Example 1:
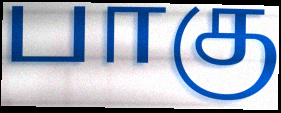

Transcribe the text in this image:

பாகு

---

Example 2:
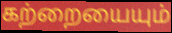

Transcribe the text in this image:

கற்றையையும்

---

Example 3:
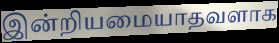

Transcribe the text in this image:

இன்றியமையாதவளாக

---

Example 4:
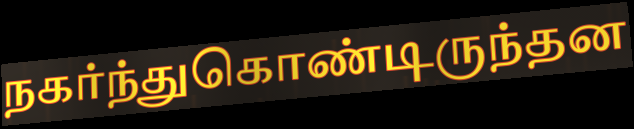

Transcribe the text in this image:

நகர்ந்துகொண்டிருந்தன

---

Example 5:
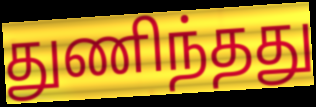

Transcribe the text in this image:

துணிந்தது